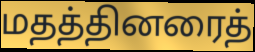
மதத்தினரைத்